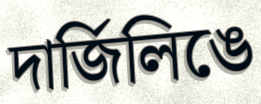
দার্জিলিঙে